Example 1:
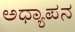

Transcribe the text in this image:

ಅಧ್ಯಾಪನ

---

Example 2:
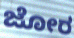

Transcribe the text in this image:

ಜೋರ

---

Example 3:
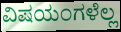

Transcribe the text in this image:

ವಿಷಯಂಗಳೆಲ್ಲ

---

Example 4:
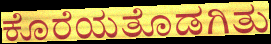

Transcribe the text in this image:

ಕೊರೆಯತೊಡಗಿತು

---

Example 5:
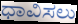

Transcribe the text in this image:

ಧಾವಿಸಲು